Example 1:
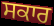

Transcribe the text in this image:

ਸਕਾਰ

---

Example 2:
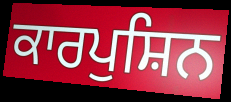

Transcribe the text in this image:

ਕਾਰਪੁਸ਼ਿਨ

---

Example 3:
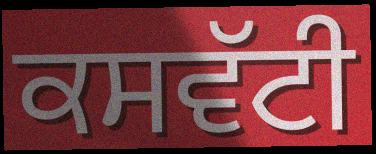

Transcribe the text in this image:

ਕਸਵੱਟੀ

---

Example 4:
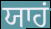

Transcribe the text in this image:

ਯਾਹਂ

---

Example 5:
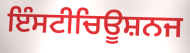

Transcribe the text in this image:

ਇੰਸਟੀਚਿਊਸ਼ਨਜ